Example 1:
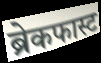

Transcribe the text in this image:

ब्रेकफास्ट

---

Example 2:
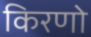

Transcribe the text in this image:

किरणो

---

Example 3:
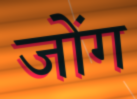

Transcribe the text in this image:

जोंग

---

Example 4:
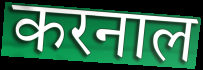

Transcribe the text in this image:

करनाल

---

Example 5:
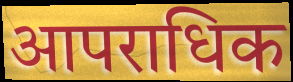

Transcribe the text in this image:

आपराधिक